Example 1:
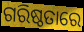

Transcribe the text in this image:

ଗରିଷ୍ଠତାରେ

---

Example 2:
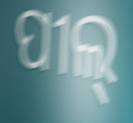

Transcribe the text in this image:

ପୀଲ୍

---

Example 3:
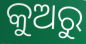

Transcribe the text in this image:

କୁଅରୁ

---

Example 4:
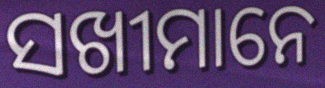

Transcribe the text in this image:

ସଖୀମାନେ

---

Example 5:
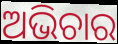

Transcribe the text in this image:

ଅଭିଚାର